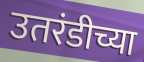
उतरंडीच्या